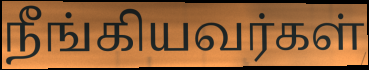
நீங்கியவர்கள்